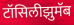
टॉसिलीझुमॅब